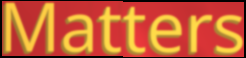
Matters